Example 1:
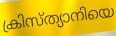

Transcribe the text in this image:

ക്രിസ്ത്യാനിയെ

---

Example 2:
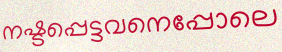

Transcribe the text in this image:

നഷ്ടപ്പെട്ടവനെപ്പോലെ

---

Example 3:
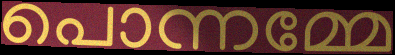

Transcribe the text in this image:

പൊന്നമ്മേ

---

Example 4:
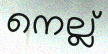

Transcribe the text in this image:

നെല്ല്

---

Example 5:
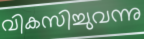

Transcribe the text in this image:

വികസിച്ചുവന്നു